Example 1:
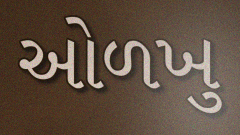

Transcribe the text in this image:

ઓળખુ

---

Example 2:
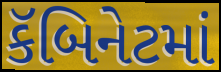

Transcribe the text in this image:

કૅબિનેટમાં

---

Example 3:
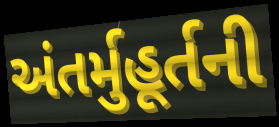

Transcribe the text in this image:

અંતર્મુહૂર્તની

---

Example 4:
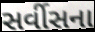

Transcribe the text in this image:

સર્વીસના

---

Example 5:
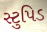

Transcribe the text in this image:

સ્ટુપિડ